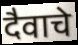
दैवाचे